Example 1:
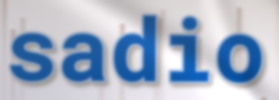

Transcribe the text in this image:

sadio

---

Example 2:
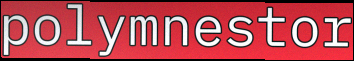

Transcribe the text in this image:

polymnestor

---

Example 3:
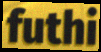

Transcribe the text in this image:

futhi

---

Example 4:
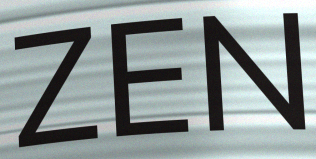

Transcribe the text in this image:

ZEN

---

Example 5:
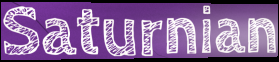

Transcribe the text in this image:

Saturnian